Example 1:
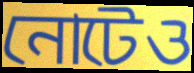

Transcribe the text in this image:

নোটেও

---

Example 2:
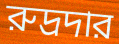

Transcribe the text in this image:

রুদ্রদার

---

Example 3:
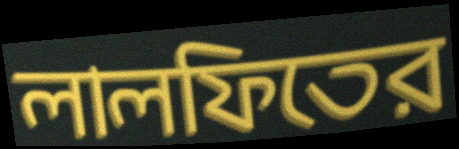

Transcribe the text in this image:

লালফিতের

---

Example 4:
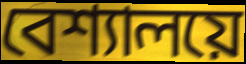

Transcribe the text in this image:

বেশ্যালয়ে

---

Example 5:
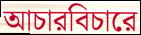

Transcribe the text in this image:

আচারবিচারে